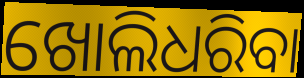
ଖୋଲିଧରିବା